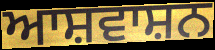
ਆਸ਼ਵਾਸ਼ਨ